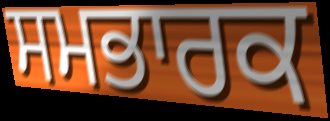
ਸਮਭਾਰਕ